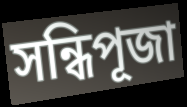
সন্ধিপূজা